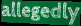
allegedly